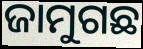
ଜାମୁଗଛ